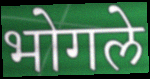
भोगले